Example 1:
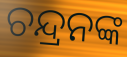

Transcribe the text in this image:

ଚନ୍ଦ୍ରନଙ୍କ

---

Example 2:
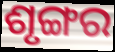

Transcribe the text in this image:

ଶୃଙ୍ଗର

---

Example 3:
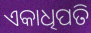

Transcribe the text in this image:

ଏକାଧିପତି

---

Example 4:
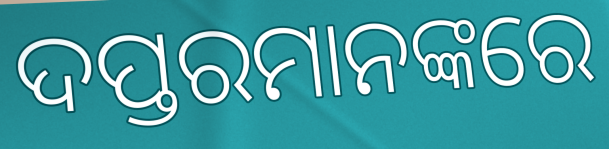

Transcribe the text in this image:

ଦପ୍ତରମାନଙ୍କରେ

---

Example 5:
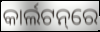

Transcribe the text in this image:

କାର୍ଲଟନ୍‌ରେ